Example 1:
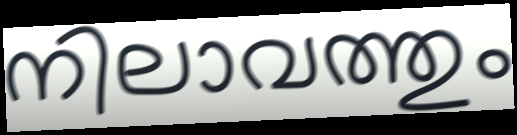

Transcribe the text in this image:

നിലാവത്തും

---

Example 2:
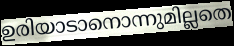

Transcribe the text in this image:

ഉരിയാടാനൊന്നുമില്ലതെ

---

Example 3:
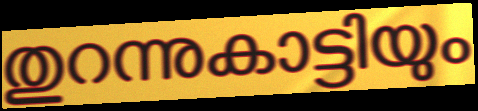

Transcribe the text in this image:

തുറന്നുകാട്ടിയും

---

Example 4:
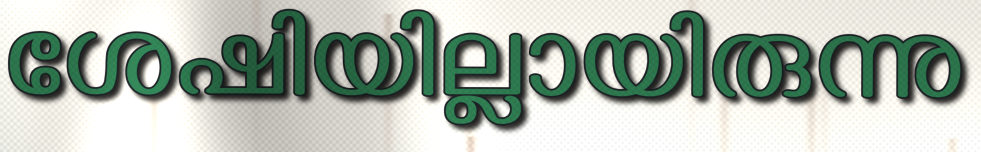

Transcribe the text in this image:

ശേഷിയില്ലായിരുന്നു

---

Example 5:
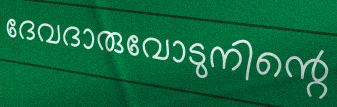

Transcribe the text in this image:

ദേവദാരുവോടുനിന്റെ